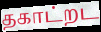
தகாட்றட